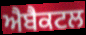
ਐਬੈਕਟਲ